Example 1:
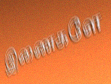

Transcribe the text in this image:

இணைகளே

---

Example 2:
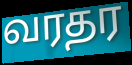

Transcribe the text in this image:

வரதர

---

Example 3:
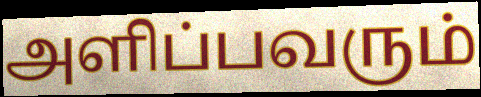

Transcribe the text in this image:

அளிப்பவரும்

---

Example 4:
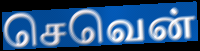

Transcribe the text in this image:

செவென்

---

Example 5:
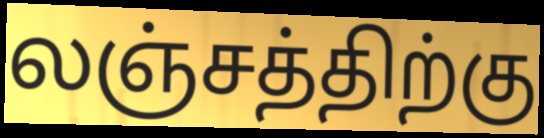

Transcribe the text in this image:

லஞ்சத்திற்கு